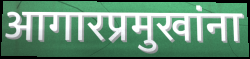
आगारप्रमुखांना